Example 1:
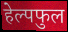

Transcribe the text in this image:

हेल्पफुल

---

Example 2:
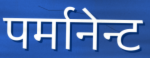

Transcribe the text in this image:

पर्मानेन्ट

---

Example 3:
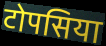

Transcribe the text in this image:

टोपसिया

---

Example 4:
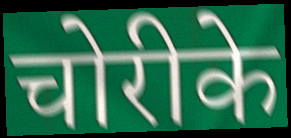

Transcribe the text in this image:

चोरीके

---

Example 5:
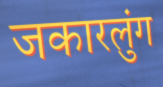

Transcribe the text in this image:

जकारलुंग